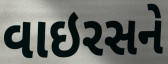
વાઇરસને